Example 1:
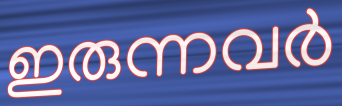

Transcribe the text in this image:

ഇരുന്നവർ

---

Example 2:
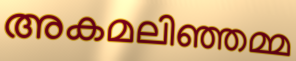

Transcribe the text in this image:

അകമലിഞ്ഞമ്മ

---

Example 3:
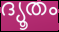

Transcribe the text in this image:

ദ്യൂതം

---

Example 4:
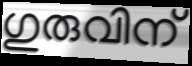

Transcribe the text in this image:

ഗുരുവിന്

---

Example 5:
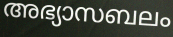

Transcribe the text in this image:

അഭ്യാസബലം